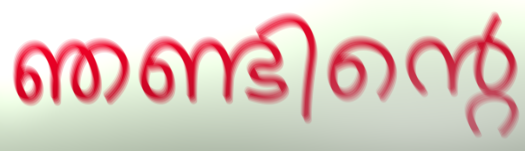
ഞണ്ടിന്റെ